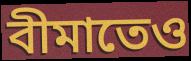
বীমাতেও